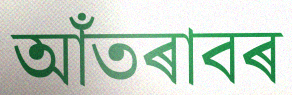
আঁতৰাবৰ